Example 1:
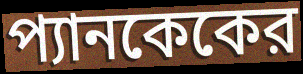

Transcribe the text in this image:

প্যানকেকের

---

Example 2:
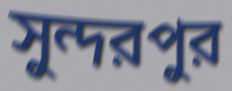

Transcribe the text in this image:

সুন্দরপুর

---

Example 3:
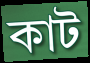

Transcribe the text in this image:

কাট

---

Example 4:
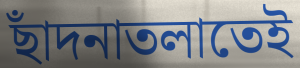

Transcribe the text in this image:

ছাঁদনাতলাতেই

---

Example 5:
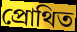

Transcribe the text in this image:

প্রোথিত